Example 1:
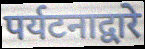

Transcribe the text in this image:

पर्यटनाद्वारे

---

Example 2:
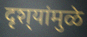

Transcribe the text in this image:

दृश्यांमुळे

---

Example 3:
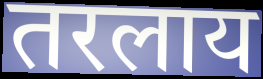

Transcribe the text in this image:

तरलाय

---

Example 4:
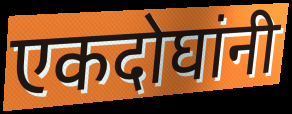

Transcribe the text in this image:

एकदोघांनी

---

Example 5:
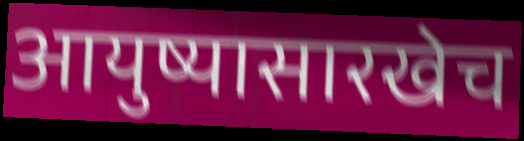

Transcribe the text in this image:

आयुष्यासारखेच